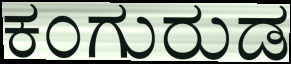
ಕಂಗುರುಡ